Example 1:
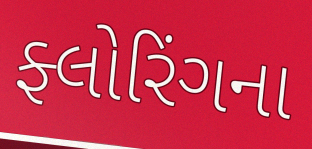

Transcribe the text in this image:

ફ્લોરિંગના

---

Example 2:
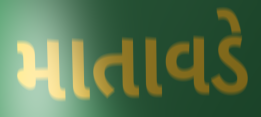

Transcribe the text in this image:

માતાવડે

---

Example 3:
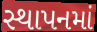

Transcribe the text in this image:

સ્થાપનમાં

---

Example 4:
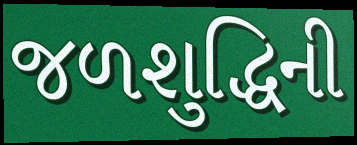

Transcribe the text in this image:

જળશુદ્ધિની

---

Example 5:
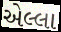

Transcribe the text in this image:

એલ્લા